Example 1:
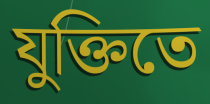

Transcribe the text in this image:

যুক্তিতে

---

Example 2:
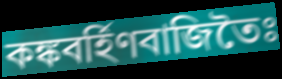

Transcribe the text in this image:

কঙ্কবর্হিণবাজিতৈঃ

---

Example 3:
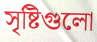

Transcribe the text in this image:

সৃষ্টিগুলো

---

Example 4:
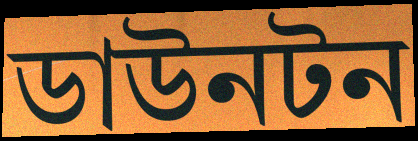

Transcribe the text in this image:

ডাউনটন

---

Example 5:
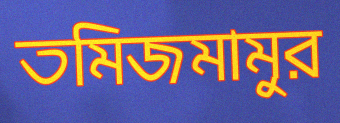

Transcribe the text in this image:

তমিজমামুর